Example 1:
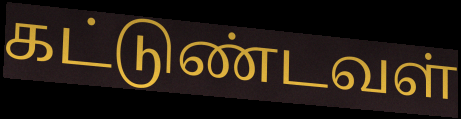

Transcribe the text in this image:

கட்டுண்டவள்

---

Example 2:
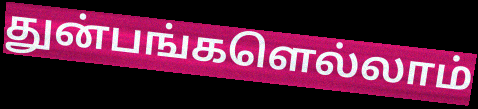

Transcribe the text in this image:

துன்பங்களெல்லாம்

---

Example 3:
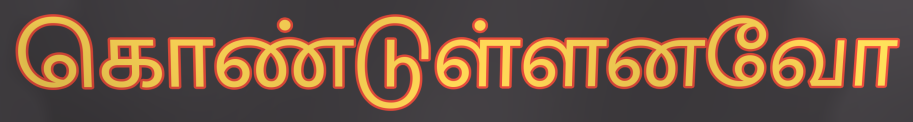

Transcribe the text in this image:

கொண்டுள்ளனவோ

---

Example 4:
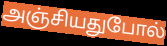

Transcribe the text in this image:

அஞ்சியதுபோல்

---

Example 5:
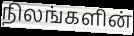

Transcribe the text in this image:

நிலங்களின்